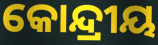
କୋନ୍ଦ୍ରୀୟ